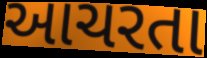
આચરતા